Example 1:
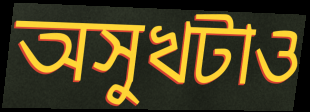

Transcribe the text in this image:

অসুখটাও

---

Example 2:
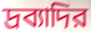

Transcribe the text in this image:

দ্রব্যাদির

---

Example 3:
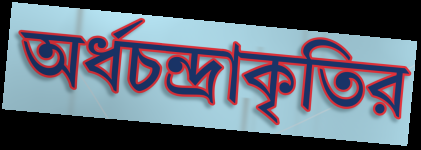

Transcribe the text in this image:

অর্ধচন্দ্রাকৃতির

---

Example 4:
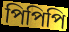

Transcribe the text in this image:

পিপিপি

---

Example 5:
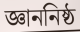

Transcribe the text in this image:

জ্ঞাননিষ্ঠ